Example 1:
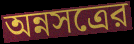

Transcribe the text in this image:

অন্নসত্রের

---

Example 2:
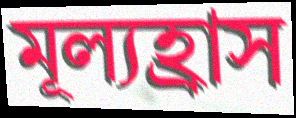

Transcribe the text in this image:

মূল্যহ্রাস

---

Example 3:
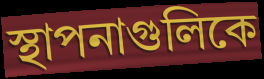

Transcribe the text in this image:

স্থাপনাগুলিকে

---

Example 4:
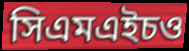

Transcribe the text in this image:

সিএমএইচও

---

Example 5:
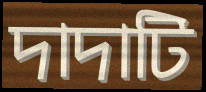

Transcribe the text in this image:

দাদাটি